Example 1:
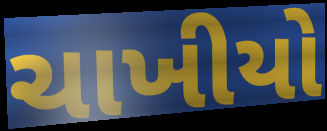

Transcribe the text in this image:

ચાખીયો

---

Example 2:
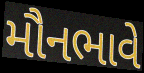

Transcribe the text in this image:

મૌનભાવે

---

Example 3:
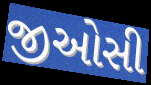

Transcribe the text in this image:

જીઓસી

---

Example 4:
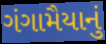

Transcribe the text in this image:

ગંગામૈયાનું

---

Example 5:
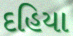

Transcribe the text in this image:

દહિયા